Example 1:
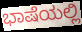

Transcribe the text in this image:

ಭಾಷೆಯಲ್ಲಿ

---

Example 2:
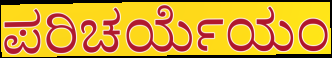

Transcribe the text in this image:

ಪರಿಚರ್ಯೆಯಂ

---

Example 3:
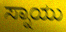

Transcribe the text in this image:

ಸ್ನಾಯು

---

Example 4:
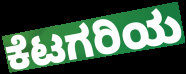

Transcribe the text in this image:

ಕೆಟಗರಿಯ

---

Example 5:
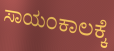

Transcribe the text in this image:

ಸಾಯಂಕಾಲಕ್ಕೆ